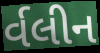
ર્વલીન